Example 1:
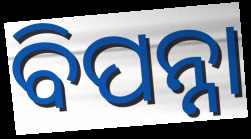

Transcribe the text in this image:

ବିପନ୍ନା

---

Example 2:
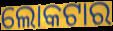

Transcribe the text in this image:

ଲୋକଟାର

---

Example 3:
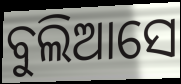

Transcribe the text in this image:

ବୁଲିଆସେ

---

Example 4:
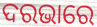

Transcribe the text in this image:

ଦରଭାରେ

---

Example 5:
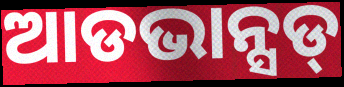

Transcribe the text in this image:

ଆଡଭାନ୍ସଡ୍